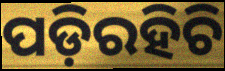
ପଡ଼ିରହିଚି